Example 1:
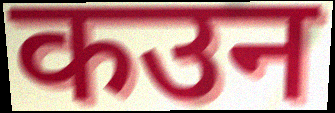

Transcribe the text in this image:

कउन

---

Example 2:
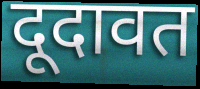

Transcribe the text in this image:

दूदावत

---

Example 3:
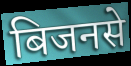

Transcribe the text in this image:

बिजनसे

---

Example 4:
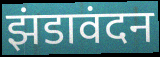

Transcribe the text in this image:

झंडावंदन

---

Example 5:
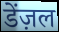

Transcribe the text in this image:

डेंज़ल